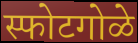
स्फोटगोळे